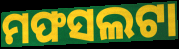
ମଫସଲଟା